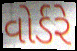
વોર્ડરે